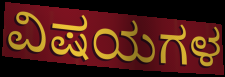
ವಿಷಯಗಳ